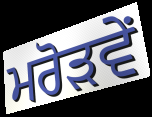
ਮਰੋੜਵੇਂ